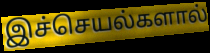
இச்செயல்களால்